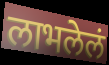
लाभलेलं